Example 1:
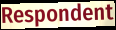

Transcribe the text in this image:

Respondent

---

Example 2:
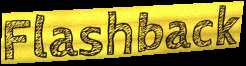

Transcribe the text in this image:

Flashback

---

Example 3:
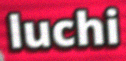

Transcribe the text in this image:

luchi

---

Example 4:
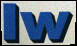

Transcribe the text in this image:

Iw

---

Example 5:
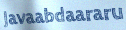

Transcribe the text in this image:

Javaabdaararu